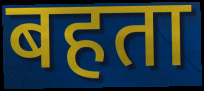
बहता